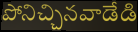
పోనిచ్చినవాడేడి